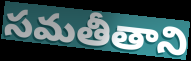
సమతీతాని